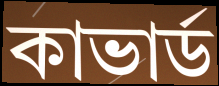
কাভার্ড